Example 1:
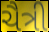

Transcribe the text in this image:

ચૈત્રી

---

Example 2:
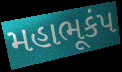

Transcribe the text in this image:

મહાભૂકંપ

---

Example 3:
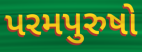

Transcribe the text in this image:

પરમપુરુષો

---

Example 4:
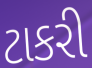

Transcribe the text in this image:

ટાકરી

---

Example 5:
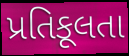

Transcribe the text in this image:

પ્રતિકૂલતા